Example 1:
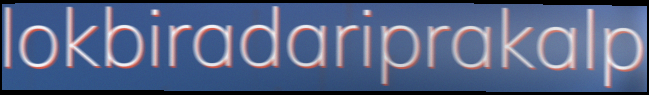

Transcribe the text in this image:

lokbiradariprakalp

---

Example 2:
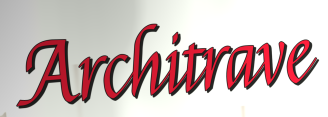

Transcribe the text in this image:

Architrave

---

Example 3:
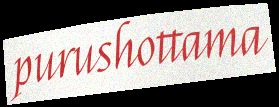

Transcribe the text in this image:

purushottama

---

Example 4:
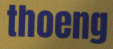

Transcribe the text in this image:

thoeng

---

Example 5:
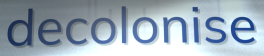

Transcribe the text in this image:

decolonise